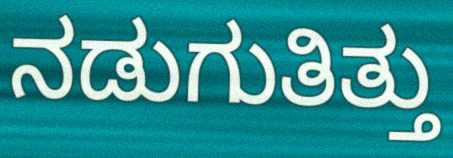
ನಡುಗುತಿತ್ತು